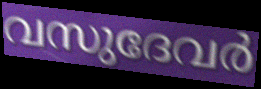
വസുദേവർ